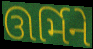
ઊર્મિને